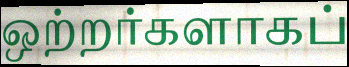
ஒற்றர்களாகப்